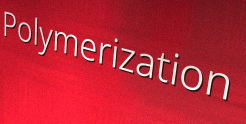
Polymerization